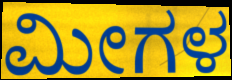
ಮೀಗಳ